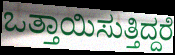
ಒತ್ತಾಯಿಸುತ್ತಿದ್ದರೆ